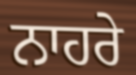
ਨਾਹਰੇ